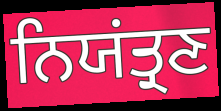
ਨਿਯਂਤ੍ਰਣ